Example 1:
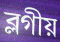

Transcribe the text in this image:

ব্লগীয়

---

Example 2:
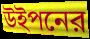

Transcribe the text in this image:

উইপনের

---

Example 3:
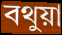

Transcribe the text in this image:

বথুয়া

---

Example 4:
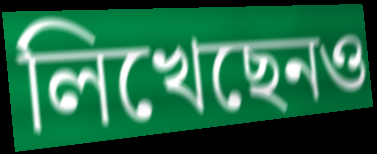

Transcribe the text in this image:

লিখেছেনও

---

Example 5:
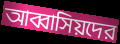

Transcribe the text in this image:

আব্বাসিয়দের